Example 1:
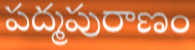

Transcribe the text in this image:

పద్మపురాణం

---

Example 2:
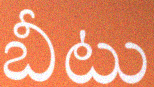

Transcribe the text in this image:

బీటు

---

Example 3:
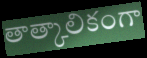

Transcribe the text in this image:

తాత్కాలికంగా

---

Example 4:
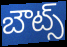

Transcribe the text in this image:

బౌట్స్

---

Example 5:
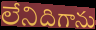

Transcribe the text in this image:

లేనిదిగాను